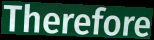
Therefore